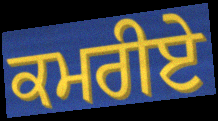
ਕਮਰੀਏ